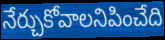
నేర్చుకోవాలనిపించేది